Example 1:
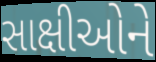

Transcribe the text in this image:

સાક્ષીઓને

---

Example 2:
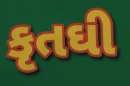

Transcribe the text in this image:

કૃતઘી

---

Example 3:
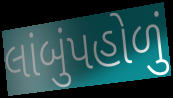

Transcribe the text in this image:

લાંબુંપહોળું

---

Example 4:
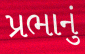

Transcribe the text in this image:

પ્રભાનું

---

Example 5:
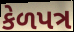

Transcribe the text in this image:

કેળપત્ર